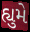
હ્યુમે